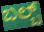
ಬಲ್ಬ್